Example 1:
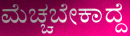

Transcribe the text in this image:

ಮೆಚ್ಚಬೇಕಾದ್ದೆ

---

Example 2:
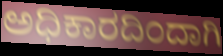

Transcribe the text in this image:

ಅಧಿಕಾರದಿಂದಾಗಿ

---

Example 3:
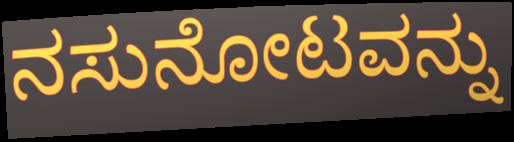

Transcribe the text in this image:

ನಸುನೋಟವನ್ನು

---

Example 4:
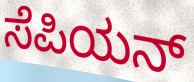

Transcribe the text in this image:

ಸೆಪಿಯನ್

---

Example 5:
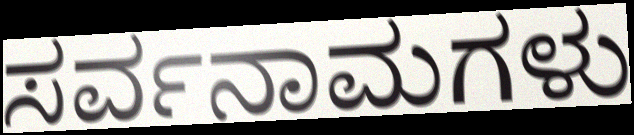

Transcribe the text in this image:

ಸರ್ವನಾಮಗಳು